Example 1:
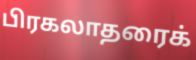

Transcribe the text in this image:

பிரகலாதரைக்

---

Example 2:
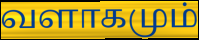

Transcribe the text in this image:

வளாகமும்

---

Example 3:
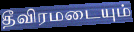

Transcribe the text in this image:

தீவிரமடையும்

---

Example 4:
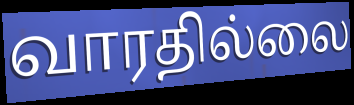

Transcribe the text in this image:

வாரதில்லை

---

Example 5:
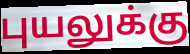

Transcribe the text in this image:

புயலுக்கு